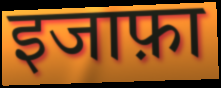
इजाफ़ा